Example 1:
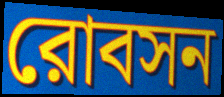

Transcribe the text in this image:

রোবসন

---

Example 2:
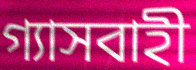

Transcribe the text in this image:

গ্যাসবাহী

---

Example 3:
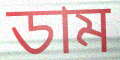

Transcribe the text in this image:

ডাম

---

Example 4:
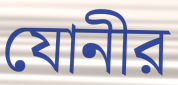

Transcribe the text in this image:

যোনীর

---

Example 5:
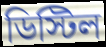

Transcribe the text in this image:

ডিস্টিল